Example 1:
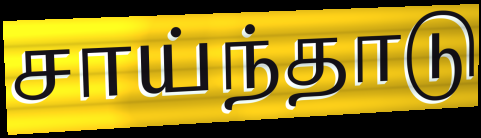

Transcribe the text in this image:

சாய்ந்தாடு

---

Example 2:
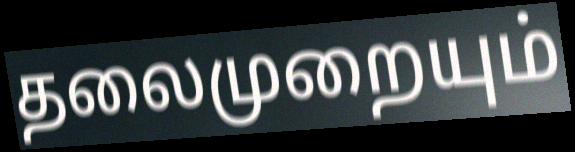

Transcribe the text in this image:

தலைமுறையும்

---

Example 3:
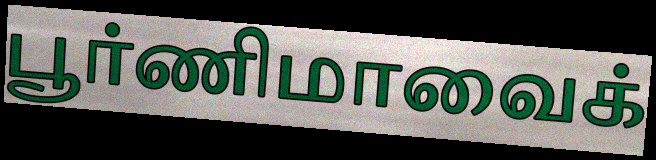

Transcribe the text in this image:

பூர்ணிமாவைக்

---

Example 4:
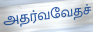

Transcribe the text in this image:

அதர்வவேதச்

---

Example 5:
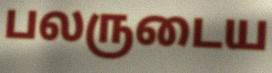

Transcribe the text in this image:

பலருடைய